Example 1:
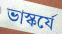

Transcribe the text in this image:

ভাস্কর্যে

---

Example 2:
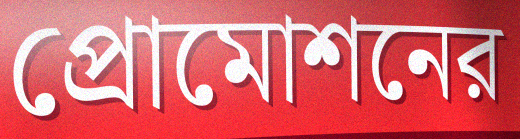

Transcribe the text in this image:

প্রোমোশনের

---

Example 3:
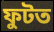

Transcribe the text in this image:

ফুটত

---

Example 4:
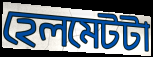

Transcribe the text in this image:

হেলমেটটা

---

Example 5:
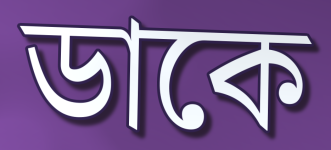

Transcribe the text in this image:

ডাকে